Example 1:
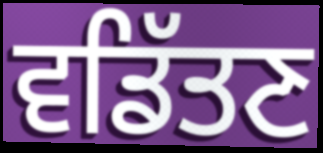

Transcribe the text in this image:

ਵਡਿੱਤਣ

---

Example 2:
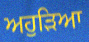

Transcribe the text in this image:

ਅਹੁੜਿਆ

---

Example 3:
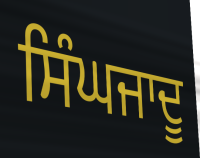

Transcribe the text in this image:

ਸਿੰਘਜਾਦੂ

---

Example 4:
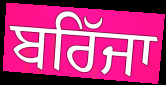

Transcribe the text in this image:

ਬਰਿੱਜਾ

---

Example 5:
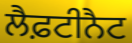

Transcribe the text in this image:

ਲੈਫ਼ਟੀਨੈਟ